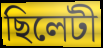
ছিলেটী